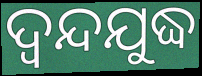
ଦ୍ୱନ୍ଦଯୁଦ୍ଧ